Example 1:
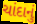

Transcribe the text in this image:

ચાંદાનું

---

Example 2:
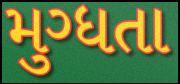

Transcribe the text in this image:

મુગ્ધતા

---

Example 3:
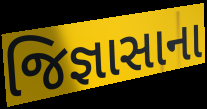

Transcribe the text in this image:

જિજ્ઞાસાના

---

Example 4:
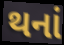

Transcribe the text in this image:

થનાં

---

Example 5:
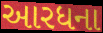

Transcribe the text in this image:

આરધના